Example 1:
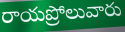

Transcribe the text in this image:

రాయప్రోలువారు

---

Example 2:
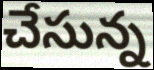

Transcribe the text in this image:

చేసున్న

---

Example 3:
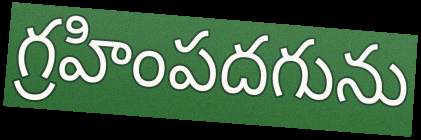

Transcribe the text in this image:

గ్రహింపదగును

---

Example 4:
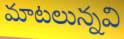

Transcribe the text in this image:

మాటలున్నవి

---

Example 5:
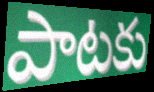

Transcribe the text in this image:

పాటకు